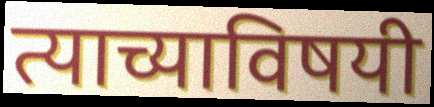
त्याच्याविषयी